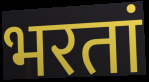
भरतां